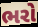
ભરો